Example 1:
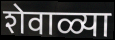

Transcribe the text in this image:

शेवाळ्या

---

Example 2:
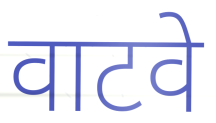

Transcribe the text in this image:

वाटवे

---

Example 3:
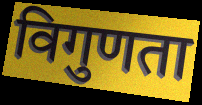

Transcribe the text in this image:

विगुणता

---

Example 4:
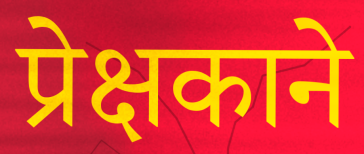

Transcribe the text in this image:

प्रेक्षकाने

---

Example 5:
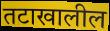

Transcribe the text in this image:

तटाखालील